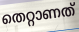
തെറ്റാണത്